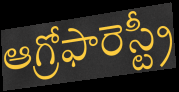
ఆగ్రోఫారెస్ట్రీ